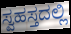
ಸ್ವಹಸ್ತದಲ್ಲಿ